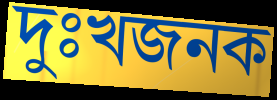
দুঃখজনক